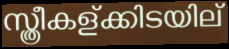
സ്ത്രീകള്ക്കിടയില്